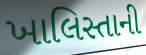
ખાલિસ્તાની